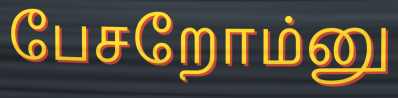
பேசறோம்னு